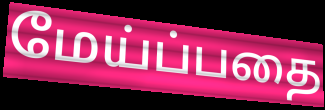
மேய்ப்பதை